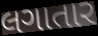
લગાતાર